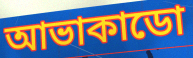
আভাকাডো